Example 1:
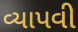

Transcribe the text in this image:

વ્યાપવી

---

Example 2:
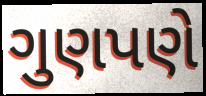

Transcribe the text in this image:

ગુણપણે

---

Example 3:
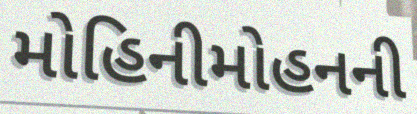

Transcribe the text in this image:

મોહિનીમોહનની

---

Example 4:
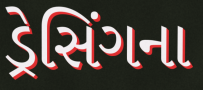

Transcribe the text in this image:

ડ્રેસિંગના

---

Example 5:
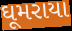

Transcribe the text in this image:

ઘૂમરાયા